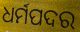
ଧର୍ମପଦର